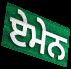
ਏਮੇਨ